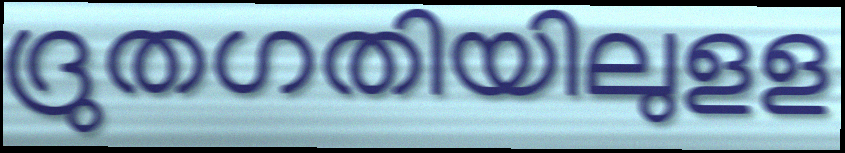
ദ്രുതഗതിയിലുളള